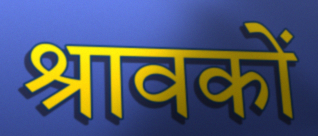
श्रावकों